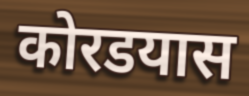
कोरडयास